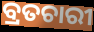
ବ୍ରତଚାରୀ